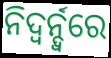
ନିଦ୍ଵର୍ନ୍ଦ୍ୱରେ